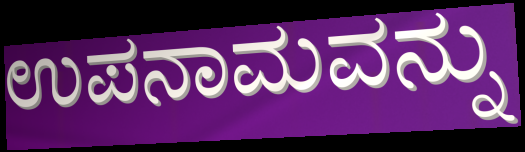
ಉಪನಾಮವನ್ನು